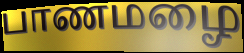
பாணமழை